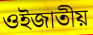
ওইজাতীয়